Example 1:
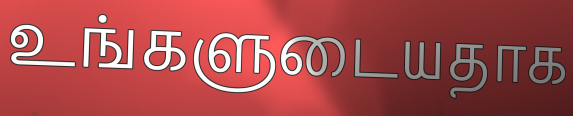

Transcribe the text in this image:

உங்களுடையதாக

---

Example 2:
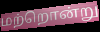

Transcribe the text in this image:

மற்றொன்று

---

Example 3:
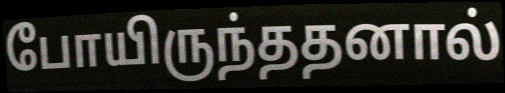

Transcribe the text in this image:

போயிருந்ததனால்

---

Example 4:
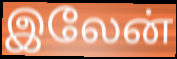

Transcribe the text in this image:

இலேன்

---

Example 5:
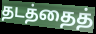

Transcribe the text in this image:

தடத்தைத்